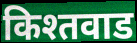
किश्तवाड